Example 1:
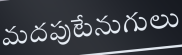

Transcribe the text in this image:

మదపుటేనుగులు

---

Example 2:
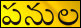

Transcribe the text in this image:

పనుల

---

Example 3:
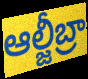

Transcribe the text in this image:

ఆల్జీబ్రా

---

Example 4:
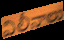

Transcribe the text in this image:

విలీనాలు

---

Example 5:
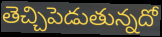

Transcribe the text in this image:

తెచ్చిపెడుతున్నదో